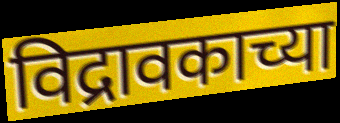
विद्रावकाच्या